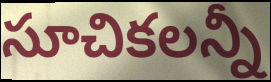
సూచికలన్నీ